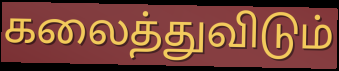
கலைத்துவிடும்